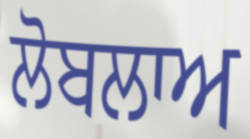
ਲੋਬਲਾਅ